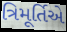
ત્રિમૂર્તિએ